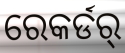
ରେକର୍ଡର୍